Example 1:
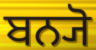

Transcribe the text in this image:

ਬਨ੍ਯੋ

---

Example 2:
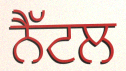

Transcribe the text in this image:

ਨੈੱਟਲ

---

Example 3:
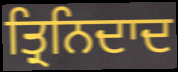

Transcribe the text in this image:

ਤ੍ਰਿਨਿਦਾਦ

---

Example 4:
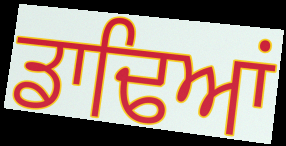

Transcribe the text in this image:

ਡਾਢਿਆਂ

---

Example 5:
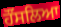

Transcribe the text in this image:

ਹੌਂਸਲਿਆ